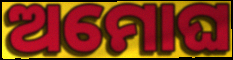
ଅମୋଘ